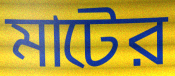
মাটের